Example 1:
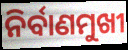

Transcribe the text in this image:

ନିର୍ବାଣମୁଖୀ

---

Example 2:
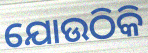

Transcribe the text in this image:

ଯୋଉଠିକି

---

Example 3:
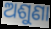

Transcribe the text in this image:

ଅଶୁଣା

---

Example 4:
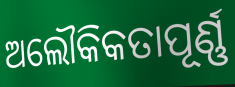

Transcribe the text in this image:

ଅଲୌକିକତାପୂର୍ଣ୍ଣ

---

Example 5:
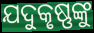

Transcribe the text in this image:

ଯଦୁକୃଷ୍ଣଙ୍କୁ